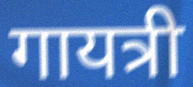
गायत्री